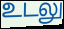
உடலு